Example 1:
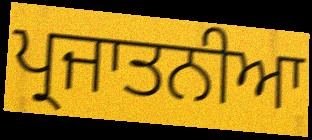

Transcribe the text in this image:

ਪ੍ਰਜਾਤਨੀਆ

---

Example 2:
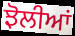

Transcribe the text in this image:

ਝੋਲੀਆਂ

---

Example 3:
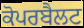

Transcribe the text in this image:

ਕੋਪਰਬੈਲਟ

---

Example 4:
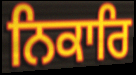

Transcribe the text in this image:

ਨਿਕਾਰਿ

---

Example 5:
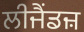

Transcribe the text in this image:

ਲੀਜੈਂਡਜ਼